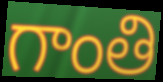
గాంతి